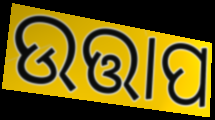
ଉତ୍ତାପ